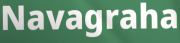
Navagraha